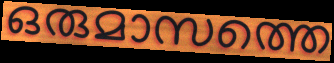
ഒരുമാസത്തെ